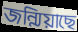
জন্মিয়াছে